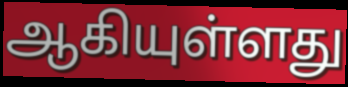
ஆகியுள்ளது